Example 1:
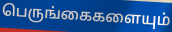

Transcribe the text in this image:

பெருங்கைகளையும்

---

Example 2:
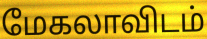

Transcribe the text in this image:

மேகலாவிடம்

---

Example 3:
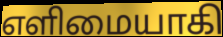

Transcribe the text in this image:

எளிமையாகி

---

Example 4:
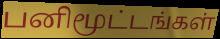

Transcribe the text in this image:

பனிமூட்டங்கள்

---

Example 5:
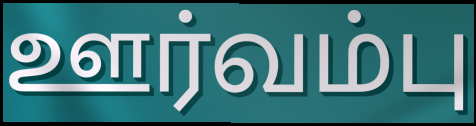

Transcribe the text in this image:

ஊர்வம்பு